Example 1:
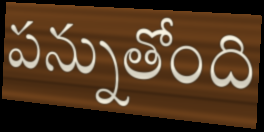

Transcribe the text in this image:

పన్నుతోంది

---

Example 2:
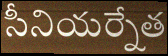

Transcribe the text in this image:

సీనియర్నేత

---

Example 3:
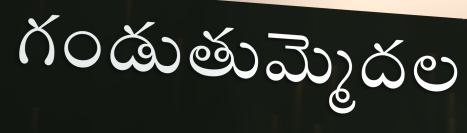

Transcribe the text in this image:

గండుతుమ్మెదల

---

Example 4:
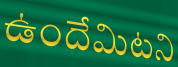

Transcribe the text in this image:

ఉందేమిటని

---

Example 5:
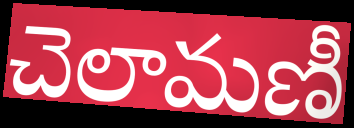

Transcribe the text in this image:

చెలామణీ